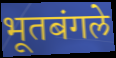
भूतबंगले